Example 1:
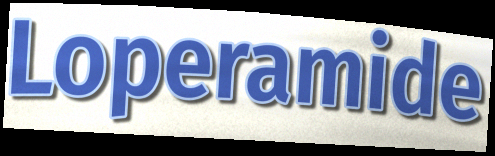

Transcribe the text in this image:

Loperamide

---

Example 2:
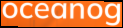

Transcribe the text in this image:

oceanog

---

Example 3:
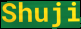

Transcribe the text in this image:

Shuji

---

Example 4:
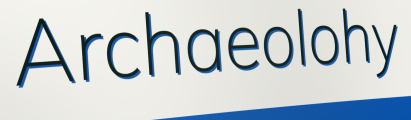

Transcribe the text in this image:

Archaeolohy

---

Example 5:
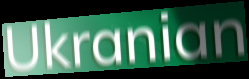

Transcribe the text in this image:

Ukranian